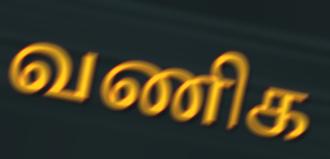
வணிக